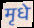
मृधे